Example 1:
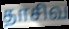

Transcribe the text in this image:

தாசிவ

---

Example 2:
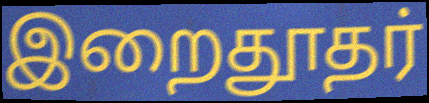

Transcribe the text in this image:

இறைதூதர்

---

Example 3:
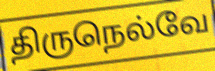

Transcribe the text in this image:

திருநெல்வே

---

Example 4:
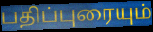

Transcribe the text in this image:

பதிப்புரையும்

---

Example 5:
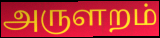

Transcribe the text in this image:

அருளறம்